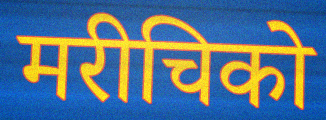
मरीचिको